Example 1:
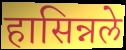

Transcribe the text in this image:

हासिन्नले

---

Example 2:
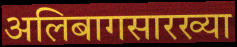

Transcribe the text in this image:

अलिबागसारख्या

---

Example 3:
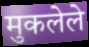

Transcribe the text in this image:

मुकलेले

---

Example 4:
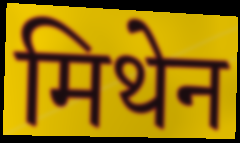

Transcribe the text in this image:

मिथेन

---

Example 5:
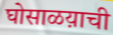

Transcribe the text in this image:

घोसाळय़ाची